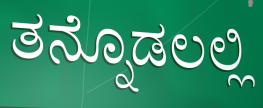
ತನ್ನೊಡಲಲ್ಲಿ